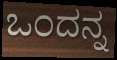
ಒಂದನ್ನ